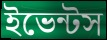
ইভেন্টস